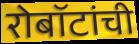
रोबॉटांची